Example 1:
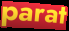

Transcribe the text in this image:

parat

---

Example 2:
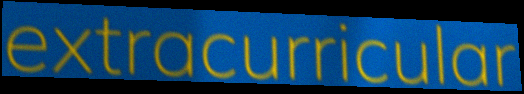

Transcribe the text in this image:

extracurricular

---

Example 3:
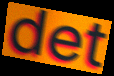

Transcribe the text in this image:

det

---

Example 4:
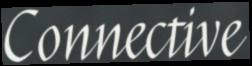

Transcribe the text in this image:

Connective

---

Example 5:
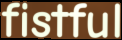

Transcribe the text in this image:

fistful